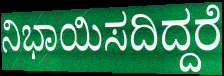
ನಿಭಾಯಿಸದಿದ್ದರೆ